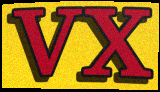
vx